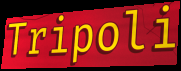
Tripoli